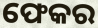
ଫେକର